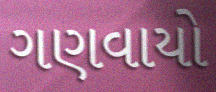
ગણવાયો